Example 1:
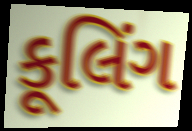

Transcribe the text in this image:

કૂલિંગ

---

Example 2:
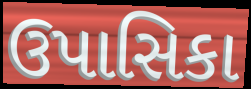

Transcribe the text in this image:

ઉપાસિકા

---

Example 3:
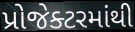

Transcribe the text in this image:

પ્રોજેક્ટરમાંથી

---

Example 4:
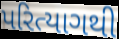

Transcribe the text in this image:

પરિત્યાગથી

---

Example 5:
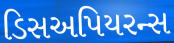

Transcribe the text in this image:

ડિસઅપિયરન્સ